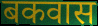
बकवास